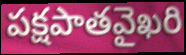
పక్షపాతవైఖరి